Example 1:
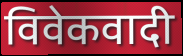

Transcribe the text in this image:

विवेकवादी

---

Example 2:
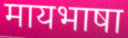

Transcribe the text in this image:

मायभाषा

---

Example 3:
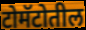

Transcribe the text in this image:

टोमॅटोतील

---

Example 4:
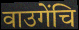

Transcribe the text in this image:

वाउगेंचि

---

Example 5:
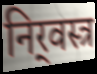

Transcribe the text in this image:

निर्वस्त्र